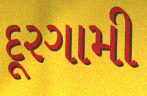
દૂરગામી